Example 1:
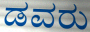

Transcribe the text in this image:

ಡವರು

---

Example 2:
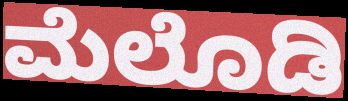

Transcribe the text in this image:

ಮೆಲೊಡಿ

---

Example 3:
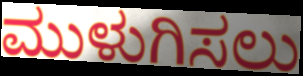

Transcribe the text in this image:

ಮುಳುಗಿಸಲು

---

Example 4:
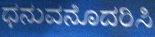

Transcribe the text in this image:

ಧನುವನೊದರಿಸಿ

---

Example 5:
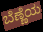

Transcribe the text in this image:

ಬೆಣ್ಣೆಯ